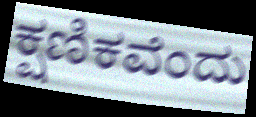
ಕ್ಷಣಿಕವೆಂದು